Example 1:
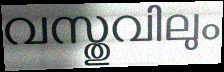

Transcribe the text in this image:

വസ്തുവിലും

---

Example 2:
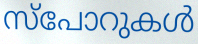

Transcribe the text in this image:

സ്പോറുകൾ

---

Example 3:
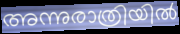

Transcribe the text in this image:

അന്നുരാത്രിയിൽ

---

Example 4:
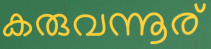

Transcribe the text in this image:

കരുവന്നൂര്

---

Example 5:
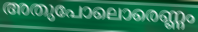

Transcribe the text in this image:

അതുപോലൊരെണ്ണം